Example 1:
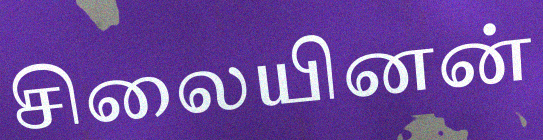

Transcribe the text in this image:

சிலையினன்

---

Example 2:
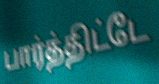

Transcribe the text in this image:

பார்த்திட்டே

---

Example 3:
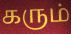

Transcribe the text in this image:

கரும்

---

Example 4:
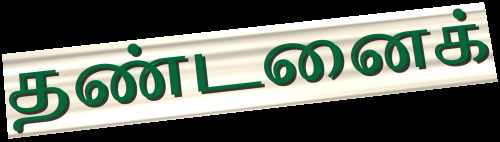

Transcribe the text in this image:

தண்டனைக்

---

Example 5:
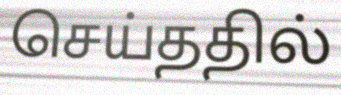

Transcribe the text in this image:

செய்ததில்